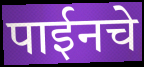
पाईनचे